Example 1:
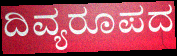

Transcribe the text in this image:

ದಿವ್ಯರೂಪದ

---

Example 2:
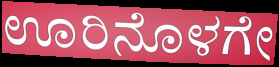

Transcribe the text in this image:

ಊರಿನೊಳಗೇ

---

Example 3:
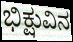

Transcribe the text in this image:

ಭಿಕ್ಷುವಿನ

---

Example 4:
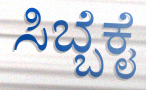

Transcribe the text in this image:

ಸಿಬ್ಬೆಕೈ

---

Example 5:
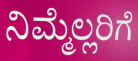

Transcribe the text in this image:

ನಿಮ್ಮೆಲ್ಲರಿಗೆ